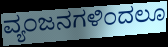
ವ್ಯಂಜನಗಳಿಂದಲೂ